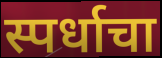
स्पर्धाचा